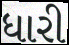
ધારી